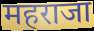
महराजा